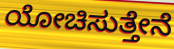
ಯೋಚಿಸುತ್ತೇನೆ